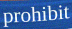
prohibit